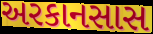
અરકાનસાસ